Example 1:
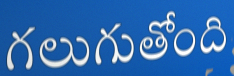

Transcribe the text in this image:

గలుగుతోంది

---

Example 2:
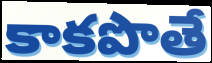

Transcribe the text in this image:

కాకపొతే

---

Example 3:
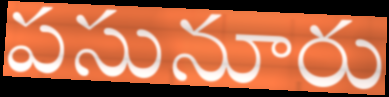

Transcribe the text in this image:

పసునూరు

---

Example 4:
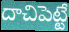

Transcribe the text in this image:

దాచిపెట్టే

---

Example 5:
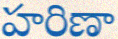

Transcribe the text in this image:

హరిణా